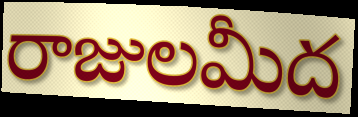
రాజులమీద